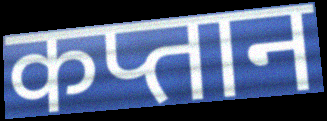
कप्‍तान